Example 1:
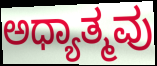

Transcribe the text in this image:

ಅಧ್ಯಾತ್ಮವು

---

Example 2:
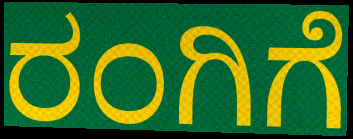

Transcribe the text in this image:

ರಂಗಿಗೆ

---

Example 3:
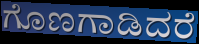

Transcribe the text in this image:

ಗೊಣಗಾಡಿದರೆ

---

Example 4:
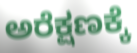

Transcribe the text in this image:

ಅರೆಕ್ಷಣಕ್ಕೆ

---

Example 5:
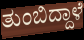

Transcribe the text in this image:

ತುಂಬಿದ್ದಾಳೆ